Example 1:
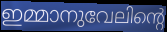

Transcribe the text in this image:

ഇമ്മാനുവേലിന്റെ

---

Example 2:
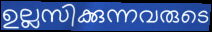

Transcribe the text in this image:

ഉല്ലസിക്കുന്നവരുടെ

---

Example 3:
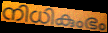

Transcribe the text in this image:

നിധികുംഭം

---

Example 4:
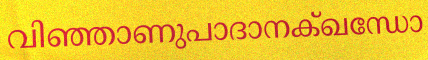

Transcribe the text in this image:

വിഞ്ഞാണുപാദാനക്ഖന്ധോ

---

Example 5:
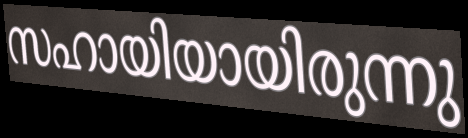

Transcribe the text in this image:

സഹായിയായിരുന്നു